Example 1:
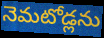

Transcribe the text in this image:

నెమటోడ్లను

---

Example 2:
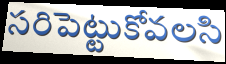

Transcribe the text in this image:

సరిపెట్టుకోవలసి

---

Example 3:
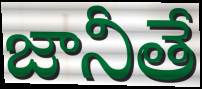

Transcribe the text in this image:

జానీతే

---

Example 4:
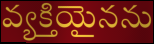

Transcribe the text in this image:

వ్యక్తియైనను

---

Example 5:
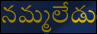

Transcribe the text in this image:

నమ్మలేడు